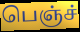
பெஞ்ச்